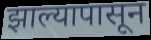
झाल्यापासून